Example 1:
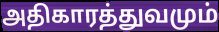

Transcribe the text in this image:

அதிகாரத்துவமும்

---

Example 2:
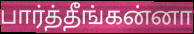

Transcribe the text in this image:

பார்த்தீங்கன்னா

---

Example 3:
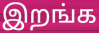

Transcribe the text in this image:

இறங்க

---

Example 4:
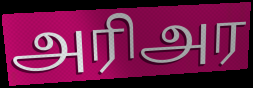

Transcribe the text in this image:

அரிஅர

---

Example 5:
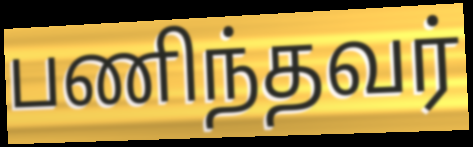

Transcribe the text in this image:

பணிந்தவர்